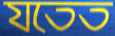
যতেত